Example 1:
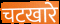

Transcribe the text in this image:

चटखारे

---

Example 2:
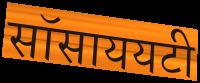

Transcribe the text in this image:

सॉसाययटी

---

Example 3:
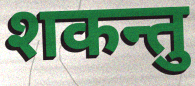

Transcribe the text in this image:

शकन्तु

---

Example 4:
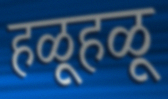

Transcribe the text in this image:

हळूहळू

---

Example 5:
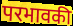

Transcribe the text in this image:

परभावकी